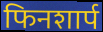
फिनशार्प